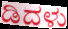
ಡಿದಳು